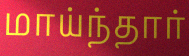
மாய்ந்தார்